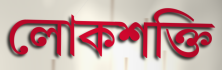
লোকশক্তি